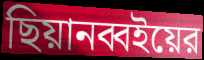
ছিয়ানব্বইয়ের